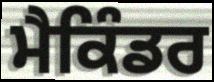
ਮੈਕਿੰਡਰ